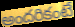
అందరికంటే